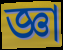
জ্ঞা